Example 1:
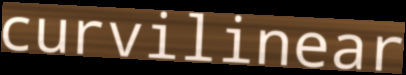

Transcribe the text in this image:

curvilinear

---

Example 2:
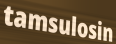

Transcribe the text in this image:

tamsulosin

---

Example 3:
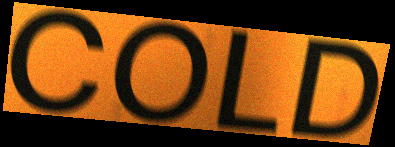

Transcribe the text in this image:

COLD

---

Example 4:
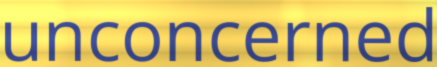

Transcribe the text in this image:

unconcerned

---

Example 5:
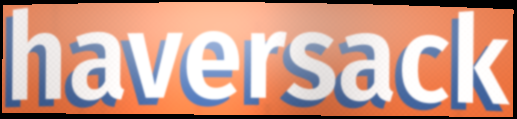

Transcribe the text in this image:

haversack